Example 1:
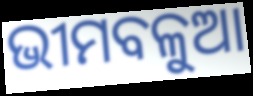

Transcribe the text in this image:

ଭୀମବଳୁଆ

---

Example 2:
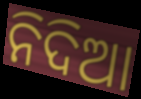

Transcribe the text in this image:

ନିଦିଆ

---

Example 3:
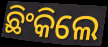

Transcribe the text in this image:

ଛିଂକିଲେ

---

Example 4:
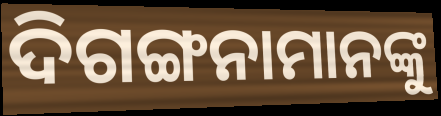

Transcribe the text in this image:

ଦିଗଙ୍ଗନାମାନଙ୍କୁ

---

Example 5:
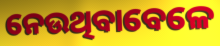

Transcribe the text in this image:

ନେଉଥିବାବେଳେ